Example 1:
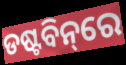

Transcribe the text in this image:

ଡଷ୍ଟବିନ୍‌ରେ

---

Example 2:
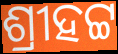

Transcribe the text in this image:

ଶ୍ରୀହଟ୍ଟ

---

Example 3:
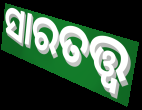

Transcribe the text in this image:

ସାରତତ୍ତ୍ୱ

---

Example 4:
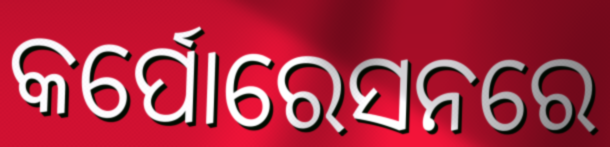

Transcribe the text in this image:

କର୍ପୋରେସନରେ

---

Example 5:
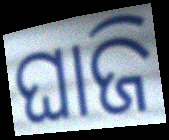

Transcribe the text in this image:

ଘାଜି